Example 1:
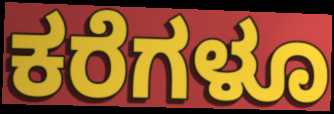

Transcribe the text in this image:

ಕರೆಗಳೂ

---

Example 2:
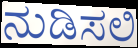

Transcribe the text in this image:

ನುಡಿಸಲಿ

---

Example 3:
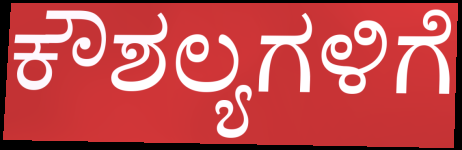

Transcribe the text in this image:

ಕೌಶಲ್ಯಗಳಿಗೆ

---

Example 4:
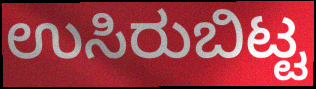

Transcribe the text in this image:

ಉಸಿರುಬಿಟ್ಟ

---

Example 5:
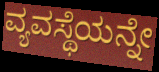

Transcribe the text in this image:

ವ್ಯವಸ್ಥೆಯನ್ನೇ